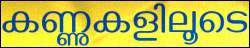
കണ്ണുകളിലൂടെ